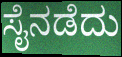
ಸೈನಡೆದು